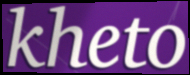
kheto